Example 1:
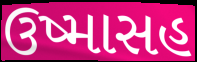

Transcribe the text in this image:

ઉષ્માસહ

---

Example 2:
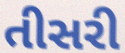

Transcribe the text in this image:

તીસરી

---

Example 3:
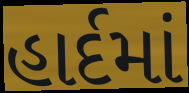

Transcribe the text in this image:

હાર્દમાં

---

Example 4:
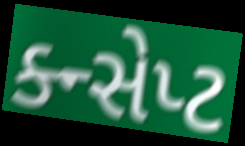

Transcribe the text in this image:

ક્ન્સેપ્ટ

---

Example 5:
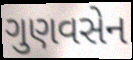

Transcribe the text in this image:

ગુણવસેન